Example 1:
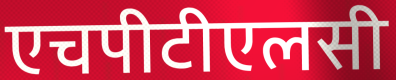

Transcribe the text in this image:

एचपीटीएलसी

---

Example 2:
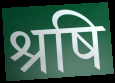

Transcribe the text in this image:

श्रषि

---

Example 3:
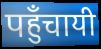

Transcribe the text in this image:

पहुँचायी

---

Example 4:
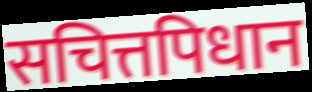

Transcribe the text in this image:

सचित्तपिधान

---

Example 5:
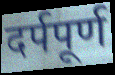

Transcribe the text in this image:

दर्पपूर्ण